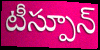
టీస్పూన్